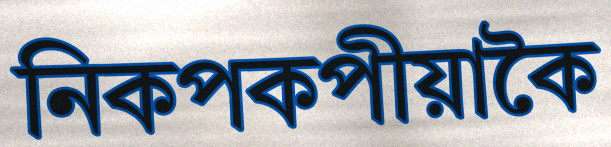
নিকপকপীয়াকৈ